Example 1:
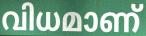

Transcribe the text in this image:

വിധമാണ്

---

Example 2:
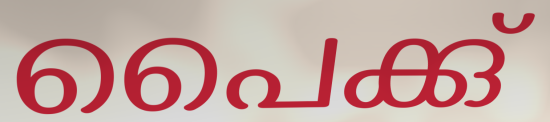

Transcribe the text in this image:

പൈക്കു്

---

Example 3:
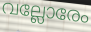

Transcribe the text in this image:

വല്ലോരേം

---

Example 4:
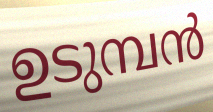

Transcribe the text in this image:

ഉടുമ്പൻ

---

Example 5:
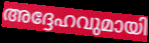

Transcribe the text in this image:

അദ്ദേഹവുമായി